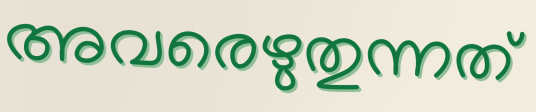
അവരെഴുതുന്നത്